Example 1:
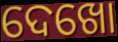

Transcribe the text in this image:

ଦେଖୋ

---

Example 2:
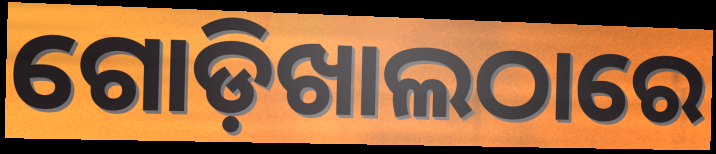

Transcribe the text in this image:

ଗୋଡ଼ିଖାଲଠାରେ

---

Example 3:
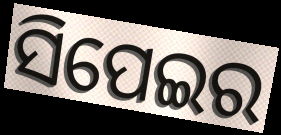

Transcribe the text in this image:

ସିପେଇର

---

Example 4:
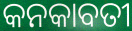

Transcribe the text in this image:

କନକାବତୀ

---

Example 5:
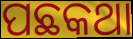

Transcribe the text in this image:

ପଛକଥା